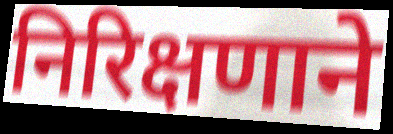
निरिक्षणाने